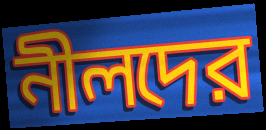
নীলদের